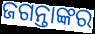
ଜଗନ୍ତାଙ୍କର